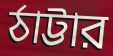
ঠাট্টার